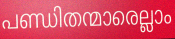
പണ്ഡിതന്മാരെല്ലാം